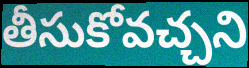
తీసుకోవచ్చని